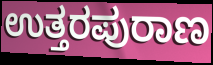
ಉತ್ತರಪುರಾಣ